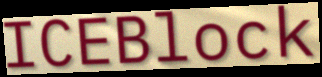
ICEBlock